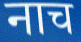
नाच